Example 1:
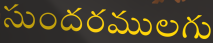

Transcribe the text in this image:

సుందరములగు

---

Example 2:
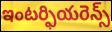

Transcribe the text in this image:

ఇంటర్ఫియరెన్స్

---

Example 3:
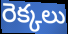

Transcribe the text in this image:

రెక్కలు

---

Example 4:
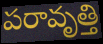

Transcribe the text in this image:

పరావృత్తి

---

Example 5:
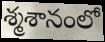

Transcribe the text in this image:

శ్మశానంలో